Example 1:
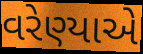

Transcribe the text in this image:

વરેણ્યાએ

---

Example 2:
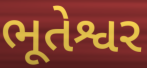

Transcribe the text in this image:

ભૂતેશ્વર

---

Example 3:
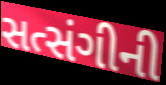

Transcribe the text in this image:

સત્સંગીની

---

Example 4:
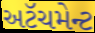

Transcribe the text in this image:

અટૅચમેન્ટ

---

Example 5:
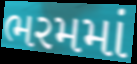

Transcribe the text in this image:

ભરમમાં